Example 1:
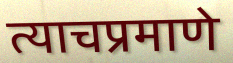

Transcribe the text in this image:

त्याचप्रमाणे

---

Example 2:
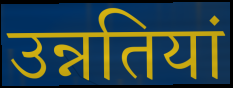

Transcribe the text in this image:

उन्नतियां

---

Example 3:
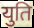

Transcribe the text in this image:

युति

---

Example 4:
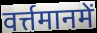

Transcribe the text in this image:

वर्त्तमानमें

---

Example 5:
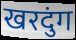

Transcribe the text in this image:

खरदुंग